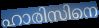
ഹാരിസിനെ